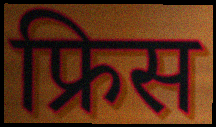
फ्रिस